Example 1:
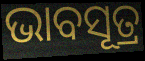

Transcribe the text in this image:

ଭାବସୂତ୍ର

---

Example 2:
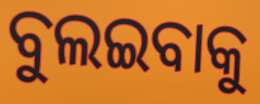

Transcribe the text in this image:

ବୁଲଇବାକୁ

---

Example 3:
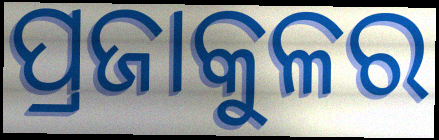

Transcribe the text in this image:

ପ୍ରଜାକୁଳର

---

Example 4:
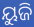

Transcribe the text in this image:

ୟୁଜି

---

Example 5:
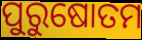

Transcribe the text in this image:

ପୁରୁଷୋତମ